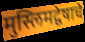
मुस्लिमद्वेषाचे